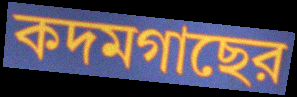
কদমগাছের